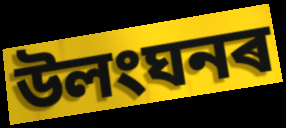
উলংঘনৰ